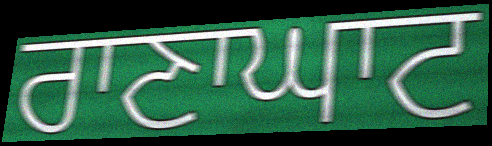
ਰਾਣਾਘਾਟ